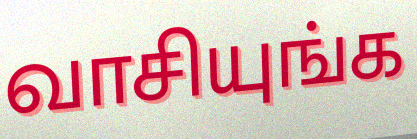
வாசியுங்க